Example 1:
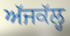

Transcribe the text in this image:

ਅੱਜਕੱਲ੍ਹ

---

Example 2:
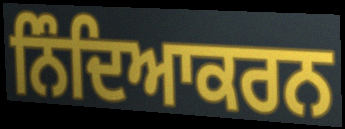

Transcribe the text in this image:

ਨਿੰਦਿਆਕਰਨ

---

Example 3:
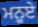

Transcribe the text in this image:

ਮਨੂਏ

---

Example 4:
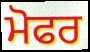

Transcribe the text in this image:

ਮੋਫਰ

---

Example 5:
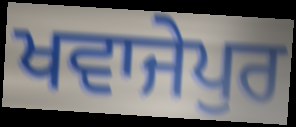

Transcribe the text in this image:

ਖਵਾਜੇਪੁਰ